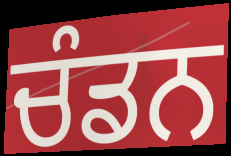
ਚੰਡਨ